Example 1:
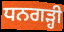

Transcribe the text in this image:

ਧਨਗੜ੍ਹੀ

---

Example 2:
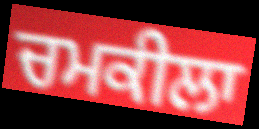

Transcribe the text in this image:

ਚਮਕੀਲਾ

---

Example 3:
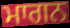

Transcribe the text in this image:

ਮਾਗਨ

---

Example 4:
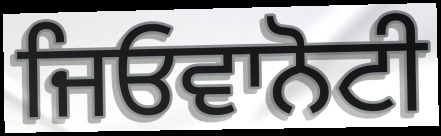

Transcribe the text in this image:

ਜਿਓਵਾਨੋਟੀ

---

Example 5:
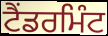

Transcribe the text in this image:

ਟੈਂਡਰਮਿੰਟ